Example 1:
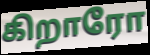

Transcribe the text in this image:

கிறாரோ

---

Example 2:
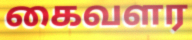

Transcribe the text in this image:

கைவளர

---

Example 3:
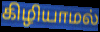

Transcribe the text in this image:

கிழியாமல்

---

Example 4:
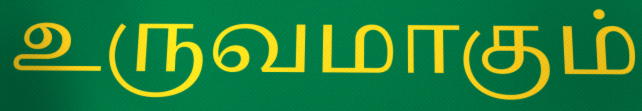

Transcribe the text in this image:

உருவமாகும்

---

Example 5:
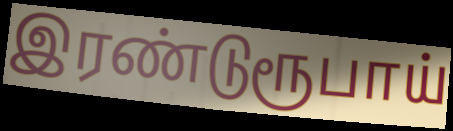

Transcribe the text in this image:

இரண்டுரூபாய்